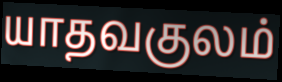
யாதவகுலம்